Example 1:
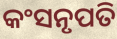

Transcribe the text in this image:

କଂସନୃପତି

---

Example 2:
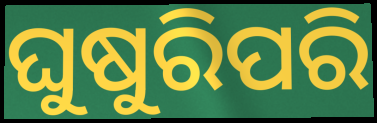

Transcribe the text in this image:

ଘୁଷୁରିପରି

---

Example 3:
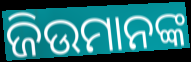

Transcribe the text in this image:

ଜିଉମାନଙ୍କ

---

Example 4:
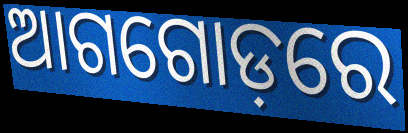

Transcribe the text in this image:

ଆଗଗୋଡ଼ରେ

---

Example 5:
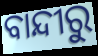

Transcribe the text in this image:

ବାନ୍ଦୀରୁ